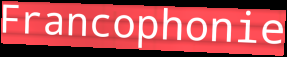
Francophonie